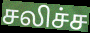
சலிச்ச